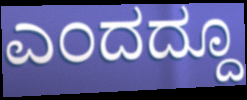
ಎಂದದ್ದೂ